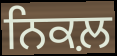
ਨਿਕਲ਼